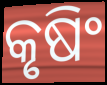
କୃଷିଂ